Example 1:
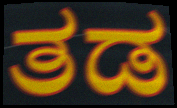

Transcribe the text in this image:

ತಡ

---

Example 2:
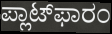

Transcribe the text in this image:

ಪ್ಲಾಟ್‌ಫಾರಂ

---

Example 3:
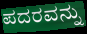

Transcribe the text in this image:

ಪದರವನ್ನು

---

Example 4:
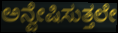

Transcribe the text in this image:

ಅನ್ವೇಷಿಸುತ್ತಲೇ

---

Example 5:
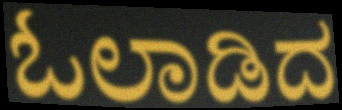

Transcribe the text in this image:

ಓಲಾಡಿದ